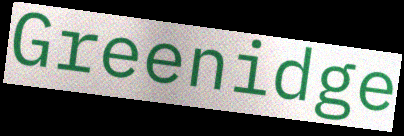
Greenidge